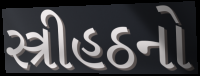
સ્ત્રીહઠનો